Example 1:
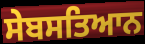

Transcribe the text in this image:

ਸੇਬਸਤਿਆਨ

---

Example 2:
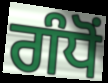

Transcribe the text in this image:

ਗੰਧੋਂ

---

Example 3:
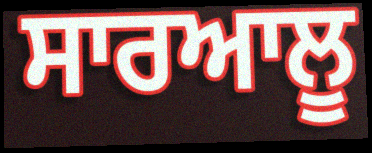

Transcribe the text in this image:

ਸਾਰਆਲੂ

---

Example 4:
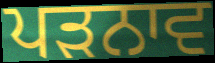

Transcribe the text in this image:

ਪੜਨਾਵ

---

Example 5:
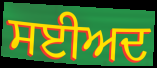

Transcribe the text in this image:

ਸਈਅਦ